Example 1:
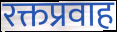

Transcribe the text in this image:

रक्तप्रवाह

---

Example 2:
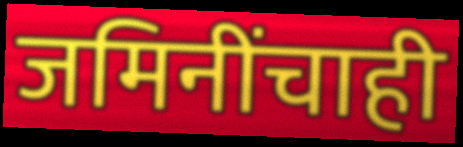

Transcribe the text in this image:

जमिनींचाही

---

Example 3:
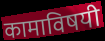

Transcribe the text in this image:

कामाविषयी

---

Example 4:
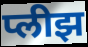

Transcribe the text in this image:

प्लीझ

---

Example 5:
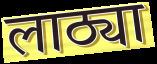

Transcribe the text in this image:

लाठ्या